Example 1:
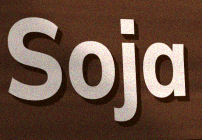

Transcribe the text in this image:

Soja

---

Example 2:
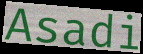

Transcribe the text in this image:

Asadi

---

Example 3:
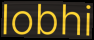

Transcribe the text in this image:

lobhi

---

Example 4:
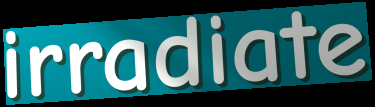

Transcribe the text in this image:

irradiate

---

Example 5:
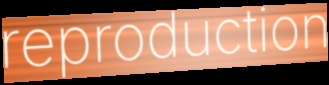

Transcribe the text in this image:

reproduction